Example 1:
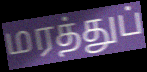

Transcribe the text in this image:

மரத்துப்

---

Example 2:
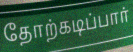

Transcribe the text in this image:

தோற்கடிப்பார்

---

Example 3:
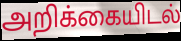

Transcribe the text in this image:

அறிக்கையிடல்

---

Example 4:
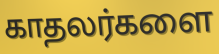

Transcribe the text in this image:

காதலர்களை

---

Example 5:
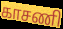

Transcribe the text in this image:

காசணி